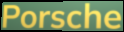
Porsche